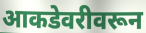
आकडेवरीवरून